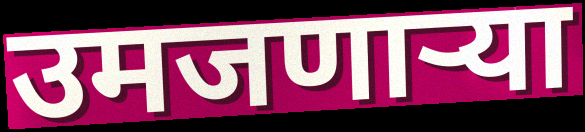
उमजणाऱ्या